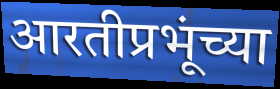
आरतीप्रभूंच्या